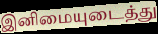
இனிமையுடைத்து